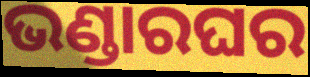
ଭଣ୍ଡାରଘର